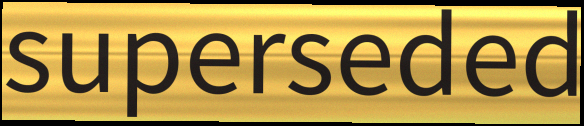
superseded